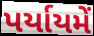
પર્યાયમેં